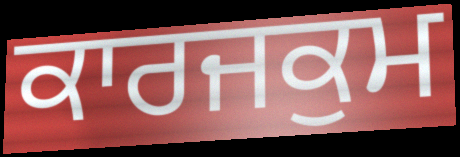
ਕਾਰਜਕੁਮ